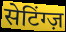
सेटिंग्ज़